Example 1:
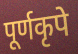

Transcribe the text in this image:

पूर्णकृपे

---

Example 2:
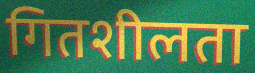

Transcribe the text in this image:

गितशीलता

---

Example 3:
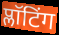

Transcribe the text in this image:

प्लॉटिंग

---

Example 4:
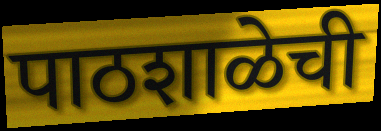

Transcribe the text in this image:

पाठशाळेची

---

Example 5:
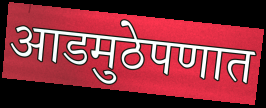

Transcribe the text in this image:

आडमुठेपणात